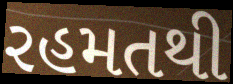
રહમતથી